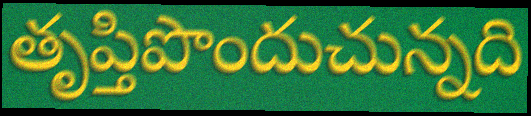
తృప్తిపొందుచున్నది